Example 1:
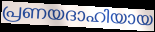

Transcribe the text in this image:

പ്രണയദാഹിയായ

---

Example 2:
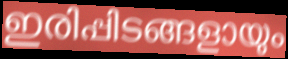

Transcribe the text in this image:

ഇരിപ്പിടങ്ങളായും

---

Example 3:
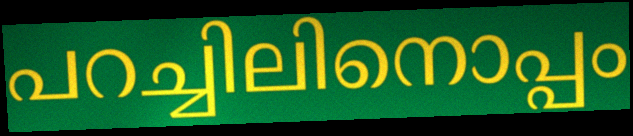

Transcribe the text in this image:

പറച്ചിലിനൊപ്പം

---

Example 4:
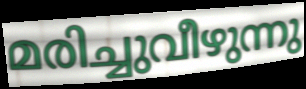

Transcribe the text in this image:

മരിച്ചുവീഴുന്നു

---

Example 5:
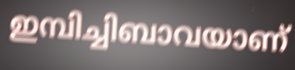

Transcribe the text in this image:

ഇമ്പിച്ചിബാവയാണ്